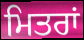
ਮਿਤਰਾਂ